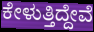
ಕೇಳುತ್ತಿದ್ದೇವೆ